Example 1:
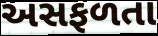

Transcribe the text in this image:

અસફળતા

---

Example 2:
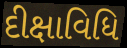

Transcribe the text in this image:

દીક્ષાવિધિ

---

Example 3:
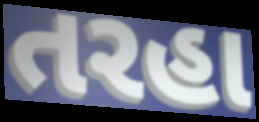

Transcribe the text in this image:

તરહા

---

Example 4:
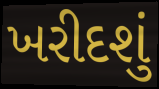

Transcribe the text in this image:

ખરીદશું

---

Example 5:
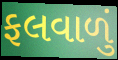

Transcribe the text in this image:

ફલવાળું